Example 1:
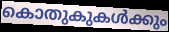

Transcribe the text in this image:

കൊതുകുകൾക്കും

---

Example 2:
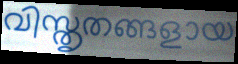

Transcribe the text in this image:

വിസ്തൃതങ്ങളായ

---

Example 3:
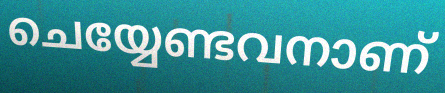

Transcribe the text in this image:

ചെയ്യേണ്ടവനാണ്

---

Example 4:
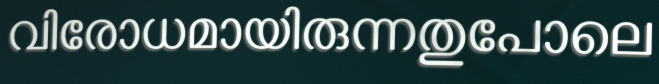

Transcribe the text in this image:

വിരോധമായിരുന്നതുപോലെ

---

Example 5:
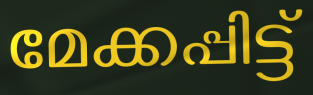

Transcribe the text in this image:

മേക്കപ്പിട്ട്